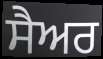
ਸੈਅਰ